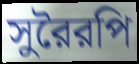
সুরৈরপি